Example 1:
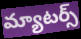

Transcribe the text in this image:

మ్యాటర్స్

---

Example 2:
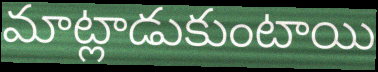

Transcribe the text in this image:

మాట్లాడుకుంటాయి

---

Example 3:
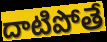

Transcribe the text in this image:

దాటిపోతే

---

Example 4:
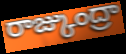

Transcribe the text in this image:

రాజ్కుంద్రా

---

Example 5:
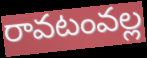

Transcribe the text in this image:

రావటంవల్ల